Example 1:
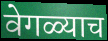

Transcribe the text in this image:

वेगळ्याच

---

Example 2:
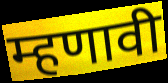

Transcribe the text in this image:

म्हणावी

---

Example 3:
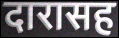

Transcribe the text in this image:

दारासह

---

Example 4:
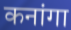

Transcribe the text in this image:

कनांगा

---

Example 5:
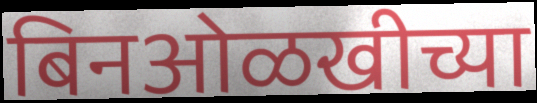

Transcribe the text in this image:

बिनओळखीच्या